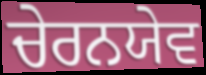
ਚੇਰਨਯੇਵ